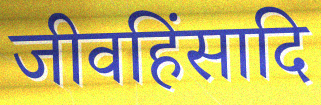
जीवहिंसादि